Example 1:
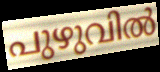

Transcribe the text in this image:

പുഴുവിൽ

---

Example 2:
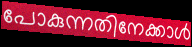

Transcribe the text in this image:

പോകുന്നതിനേക്കാൾ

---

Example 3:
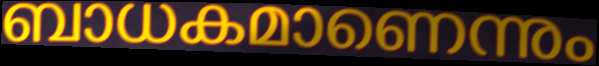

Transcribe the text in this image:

ബാധകമാണെന്നും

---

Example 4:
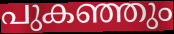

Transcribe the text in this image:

പുകഞ്ഞും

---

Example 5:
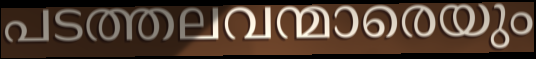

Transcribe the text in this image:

പടത്തലവന്മാരെയും